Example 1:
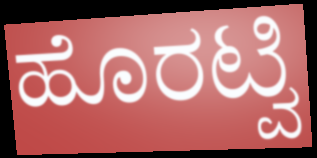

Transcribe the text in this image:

ಹೊರಟ್ವಿ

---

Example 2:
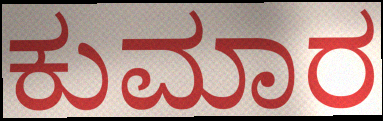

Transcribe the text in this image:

ಕುಮಾರ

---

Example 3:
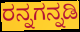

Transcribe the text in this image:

ರನ್ನಗನ್ನಡಿ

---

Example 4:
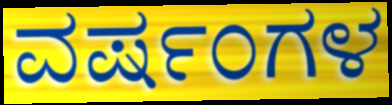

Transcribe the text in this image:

ವರ್ಷಂಗಳ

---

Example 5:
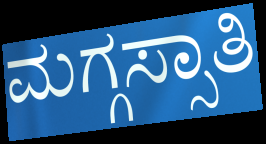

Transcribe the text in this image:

ಮಗ್ಗಸ್ಸಾತಿ